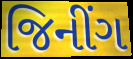
જિનીંગ